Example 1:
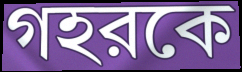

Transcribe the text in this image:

গহরকে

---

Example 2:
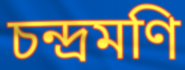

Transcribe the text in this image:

চন্দ্রমণি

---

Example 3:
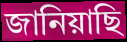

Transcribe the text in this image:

জানিয়াছি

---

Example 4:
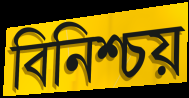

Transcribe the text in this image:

বিনিশ্চয়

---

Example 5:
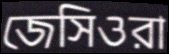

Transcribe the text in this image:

জেসিওরা